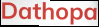
Dathopa